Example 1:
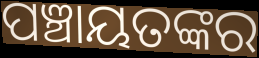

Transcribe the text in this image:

ପଞ୍ଚାୟତଙ୍କର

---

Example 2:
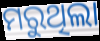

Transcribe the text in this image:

ମରୁଥିଲା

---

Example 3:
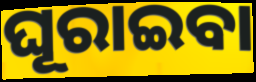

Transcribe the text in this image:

ଘୂରାଇବା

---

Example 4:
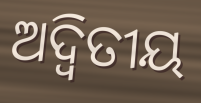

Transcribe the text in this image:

ଅଦ୍ବିତୀୟ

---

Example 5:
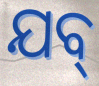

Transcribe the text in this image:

ଯବ୍